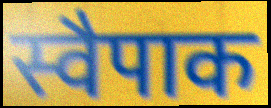
स्वैपाक